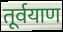
तूर्वयाण